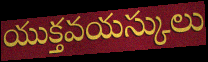
యుక్తవయస్కులు